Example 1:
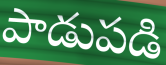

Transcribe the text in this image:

పాడుపడి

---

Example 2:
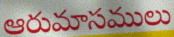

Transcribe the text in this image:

ఆరుమాసములు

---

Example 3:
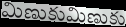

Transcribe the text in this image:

మిణుకుమిణుకు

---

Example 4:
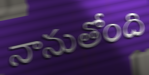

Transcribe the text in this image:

నానుతోంది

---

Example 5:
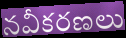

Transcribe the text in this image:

నవీకరణలు